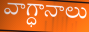
వాగ్ధానాలు